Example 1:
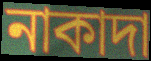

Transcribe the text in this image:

নাকাদা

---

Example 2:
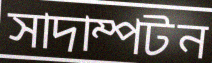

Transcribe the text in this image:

সাদাম্পটন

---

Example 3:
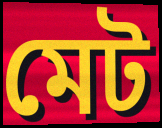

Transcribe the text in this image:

মেট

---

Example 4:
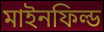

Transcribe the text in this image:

মাইনফিল্ড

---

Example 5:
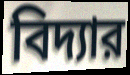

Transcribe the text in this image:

বিদ্যার